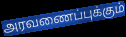
அரவணைப்புக்கும்